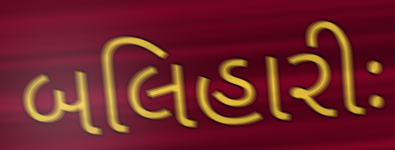
બલિહારીઃ